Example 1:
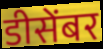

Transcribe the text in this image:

डीसेंबर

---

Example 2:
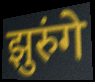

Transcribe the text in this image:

झुरुंगे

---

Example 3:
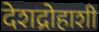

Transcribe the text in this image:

देशद्रोहाशी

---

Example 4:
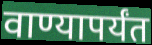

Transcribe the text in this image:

वाण्यापर्यंत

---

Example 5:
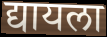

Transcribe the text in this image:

द्यायला